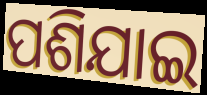
ପଶିଯାଇ